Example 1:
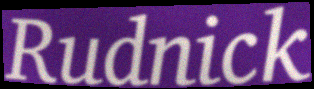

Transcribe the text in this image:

Rudnick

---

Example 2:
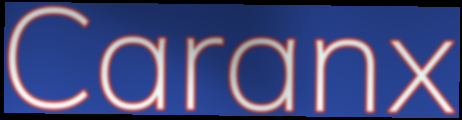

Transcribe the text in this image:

Caranx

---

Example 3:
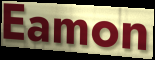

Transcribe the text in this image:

Eamon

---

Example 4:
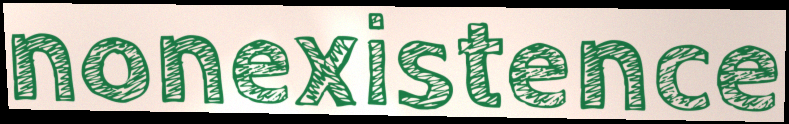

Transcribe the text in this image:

nonexistence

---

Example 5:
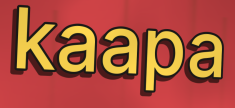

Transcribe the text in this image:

kaapa